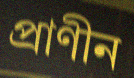
প্রাণীন